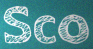
Sco